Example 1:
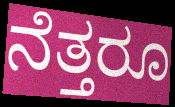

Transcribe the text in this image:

ನೆತ್ತರೂ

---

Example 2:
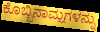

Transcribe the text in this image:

ಕೊಬ್ಬಿನಾಮ್ಲಗಳನ್ನು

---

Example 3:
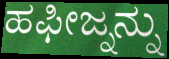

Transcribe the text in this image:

ಹಫೀಜ್ನನ್ನು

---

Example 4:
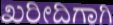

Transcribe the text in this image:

ಖರೀದಿಗಾಗಿ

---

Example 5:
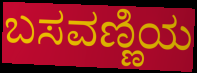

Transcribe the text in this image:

ಬಸವಣ್ಣಿಯ